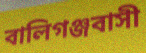
বালিগঞ্জবাসী